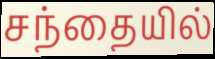
சந்தையில்